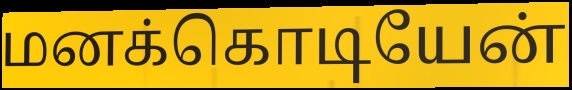
மனக்கொடியேன்